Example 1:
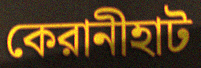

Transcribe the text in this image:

কেরানীহাট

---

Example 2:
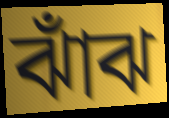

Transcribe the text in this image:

ঝাঁঝ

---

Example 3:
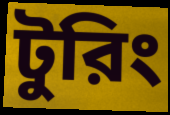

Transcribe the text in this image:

টুরিং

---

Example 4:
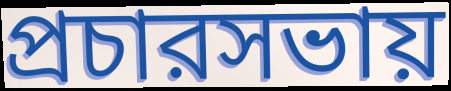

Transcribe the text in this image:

প্রচারসভায়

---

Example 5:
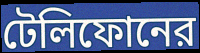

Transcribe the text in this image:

টেলিফোনের